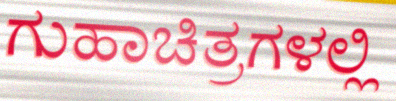
ಗುಹಾಚಿತ್ರಗಳಲ್ಲಿ